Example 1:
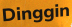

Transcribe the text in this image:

Dinggin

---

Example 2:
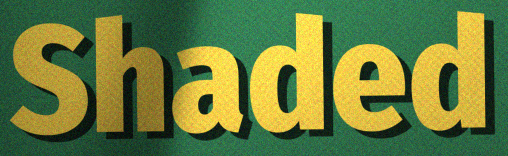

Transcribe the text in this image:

Shaded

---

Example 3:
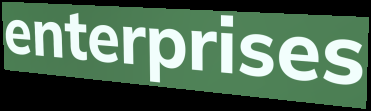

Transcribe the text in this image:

enterprises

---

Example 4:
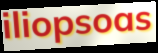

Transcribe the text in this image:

iliopsoas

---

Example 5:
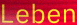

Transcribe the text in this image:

Leben